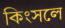
কিংসলে